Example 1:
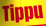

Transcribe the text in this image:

Tippu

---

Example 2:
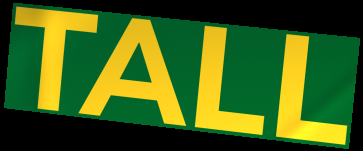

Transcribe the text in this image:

TALL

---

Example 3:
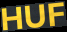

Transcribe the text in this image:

HUF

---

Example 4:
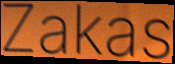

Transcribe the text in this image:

Zakas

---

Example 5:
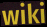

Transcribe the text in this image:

wiki